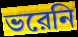
ভরেনি